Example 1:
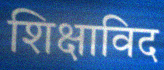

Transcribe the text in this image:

शिक्षाविद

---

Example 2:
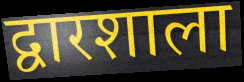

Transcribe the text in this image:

द्वारशाला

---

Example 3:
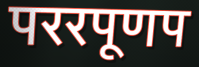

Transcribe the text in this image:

पररपूणप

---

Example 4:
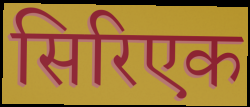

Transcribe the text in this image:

सिरिएक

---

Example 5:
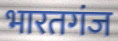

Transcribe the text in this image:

भारतगंज